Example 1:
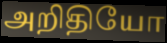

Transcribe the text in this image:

அறிதியோ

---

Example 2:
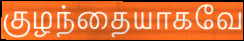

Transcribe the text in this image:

குழந்தையாகவே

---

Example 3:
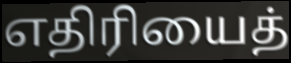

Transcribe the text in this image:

எதிரியைத்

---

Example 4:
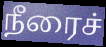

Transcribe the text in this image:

நீரைச்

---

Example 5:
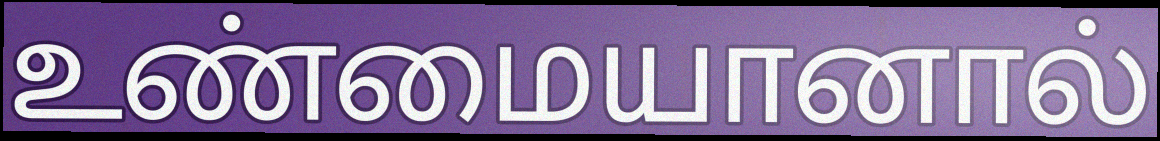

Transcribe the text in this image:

உண்மையானால்